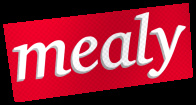
mealy